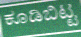
ಕೂಡಿಬಿಟ್ಟ